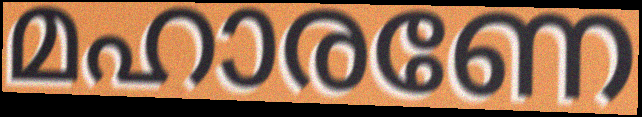
മഹാരണേ